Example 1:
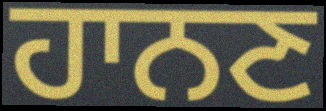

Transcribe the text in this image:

ਹਾਨਣ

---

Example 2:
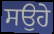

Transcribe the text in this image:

ਸਉਹੇ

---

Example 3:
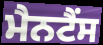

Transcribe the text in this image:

ਮੈਨਟੈਂਸ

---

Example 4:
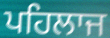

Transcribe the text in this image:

ਪਹਿਲਾਜ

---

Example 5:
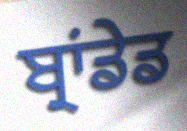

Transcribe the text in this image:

ਬ੍ਰਾਂਡੇਡ